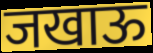
जखाऊ